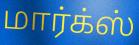
மார்க்ஸ்